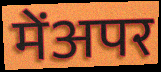
मेंअपर